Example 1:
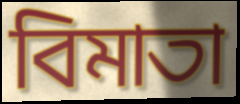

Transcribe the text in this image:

বিমাতা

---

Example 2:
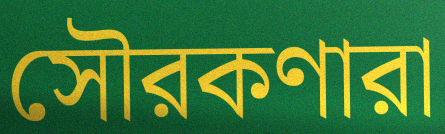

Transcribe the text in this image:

সৌরকণারা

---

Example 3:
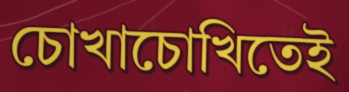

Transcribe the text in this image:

চোখাচোখিতেই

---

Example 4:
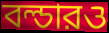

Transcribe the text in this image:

বল্ডারও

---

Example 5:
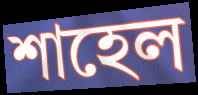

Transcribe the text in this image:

শাহেল